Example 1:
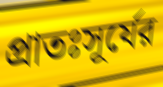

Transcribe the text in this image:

প্রাতঃসূর্যের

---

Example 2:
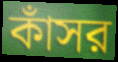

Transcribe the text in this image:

কাঁসর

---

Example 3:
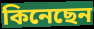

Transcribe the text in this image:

কিনেছেন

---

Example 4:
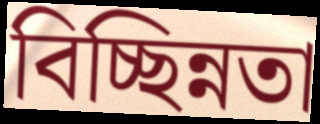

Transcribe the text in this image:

বিচ্ছিন্নতা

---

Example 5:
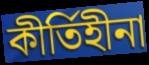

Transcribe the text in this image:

কীর্তিহীনা